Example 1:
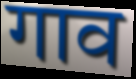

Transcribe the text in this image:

गाव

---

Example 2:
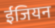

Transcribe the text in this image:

ईजियन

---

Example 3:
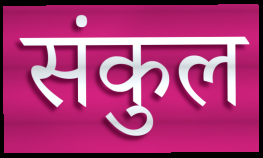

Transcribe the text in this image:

संकुल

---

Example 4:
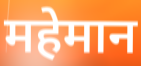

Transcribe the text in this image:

महेमान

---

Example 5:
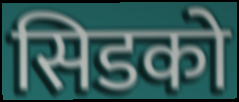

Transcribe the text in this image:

सिडको